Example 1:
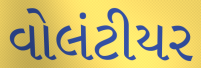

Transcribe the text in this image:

વોલંટીયર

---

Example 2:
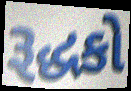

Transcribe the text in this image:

રૂદ્ધકો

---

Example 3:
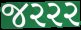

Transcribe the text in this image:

જરરર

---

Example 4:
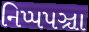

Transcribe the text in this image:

નિપ્પપઞ્ચા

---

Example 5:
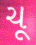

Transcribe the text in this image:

ચૂ